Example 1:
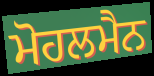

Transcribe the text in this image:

ਮੋਹਲਮੈਨ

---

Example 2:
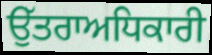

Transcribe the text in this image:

ਉੱਤਰਾਅਧਿਕਾਰੀ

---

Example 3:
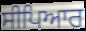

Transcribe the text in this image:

ਸੀਪਿਆਰ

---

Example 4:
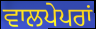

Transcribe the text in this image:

ਵਾਲਪੇਪਰਾਂ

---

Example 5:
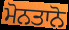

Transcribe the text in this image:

ਮੋਨਤਾਨੋ